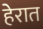
हेरात